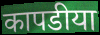
कापडीया